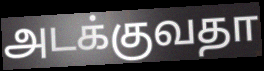
அடக்குவதா